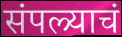
संपल्याचं